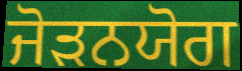
ਜੋੜਨਯੋਗ